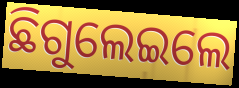
ଛିଗୁଲେଇଲେ